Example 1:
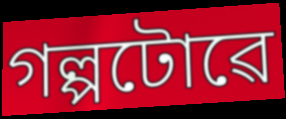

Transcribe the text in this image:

গল্পটোৱে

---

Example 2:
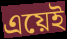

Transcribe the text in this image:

এয়েই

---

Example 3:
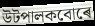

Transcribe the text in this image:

উটপালকবোৰে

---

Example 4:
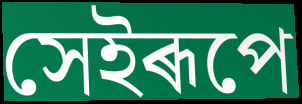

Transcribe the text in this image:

সেইৰূপে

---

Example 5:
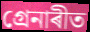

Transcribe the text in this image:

গ্ৰেনাৰীত